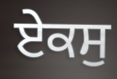
ਏਕਸੁ